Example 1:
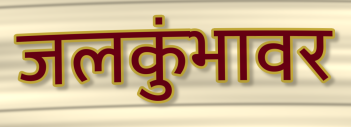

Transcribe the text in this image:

जलकुंभावर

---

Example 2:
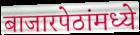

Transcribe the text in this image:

बाजारपेठांमध्ये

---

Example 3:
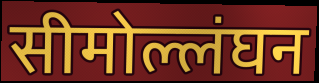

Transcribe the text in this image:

सीमोल्लंघन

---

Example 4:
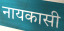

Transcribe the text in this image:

नायकासी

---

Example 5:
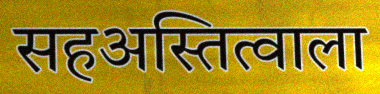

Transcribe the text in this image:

सहअस्तित्वाला